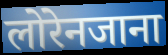
लोरेनजाना